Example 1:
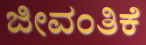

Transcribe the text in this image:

ಜೀವಂತಿಕೆ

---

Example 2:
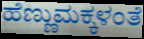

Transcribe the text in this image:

ಹೆಣ್ಣುಮಕ್ಕಳಂತೆ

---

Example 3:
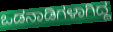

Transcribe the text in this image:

ಒಡನಾಡಿಗಳಾಗಿದ್ದ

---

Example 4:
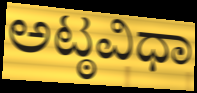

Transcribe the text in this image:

ಅಟ್ಠವಿಧಾ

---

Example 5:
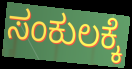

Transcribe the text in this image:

ಸಂಕುಲಕ್ಕೆ